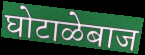
घोटाळेबाज